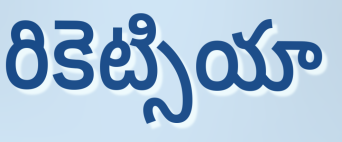
రికెట్సియా